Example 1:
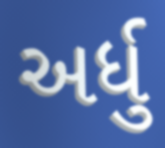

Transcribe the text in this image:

અર્ધુ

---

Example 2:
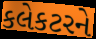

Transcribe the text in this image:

કલેકટરને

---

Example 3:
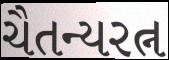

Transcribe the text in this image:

ચૈતન્યરત્ન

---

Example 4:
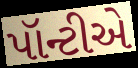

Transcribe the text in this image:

પૉન્ટીએ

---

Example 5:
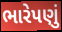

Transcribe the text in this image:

ભારેપણું